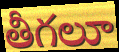
తీగలూ